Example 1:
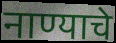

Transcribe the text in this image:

नाण्याचे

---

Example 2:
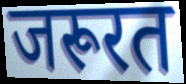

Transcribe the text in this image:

जरूरत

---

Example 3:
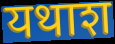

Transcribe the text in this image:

यथाश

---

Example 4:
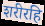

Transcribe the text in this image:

शरीरहि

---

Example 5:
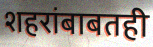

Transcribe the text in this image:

शहरांबाबतही